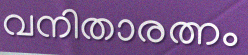
വനിതാരത്നം